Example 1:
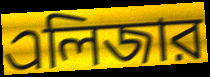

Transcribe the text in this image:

এলিজার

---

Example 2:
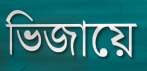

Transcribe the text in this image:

ভিজায়ে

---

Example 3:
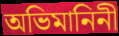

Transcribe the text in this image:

অভিমানিনী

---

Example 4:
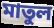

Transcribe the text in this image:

মাতুল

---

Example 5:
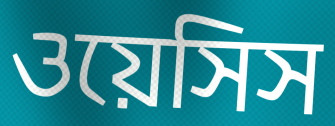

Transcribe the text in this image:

ওয়েসিস